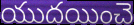
యుదయించె